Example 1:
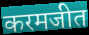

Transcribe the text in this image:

करमजीत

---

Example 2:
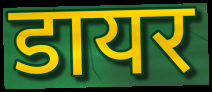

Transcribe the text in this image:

डायर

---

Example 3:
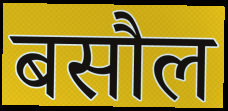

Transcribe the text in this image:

बसौल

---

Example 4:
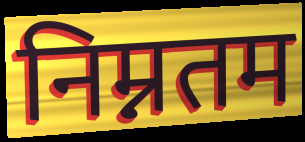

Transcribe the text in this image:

निम्नतम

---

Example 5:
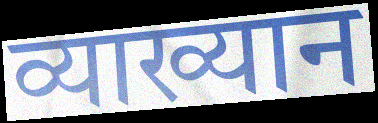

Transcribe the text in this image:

व्‍याख्‍यान